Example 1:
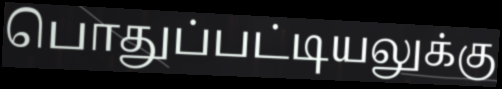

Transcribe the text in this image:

பொதுப்பட்டியலுக்கு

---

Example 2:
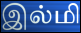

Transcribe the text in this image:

இல்மி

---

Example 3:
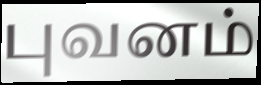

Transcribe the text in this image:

புவனம்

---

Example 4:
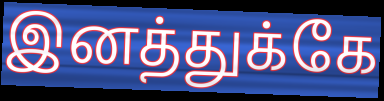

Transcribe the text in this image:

இனத்துக்கே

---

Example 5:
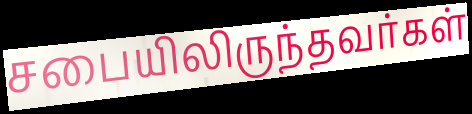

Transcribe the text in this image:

சபையிலிருந்தவர்கள்